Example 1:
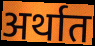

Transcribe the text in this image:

अर्थात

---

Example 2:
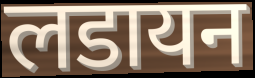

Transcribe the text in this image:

लडायन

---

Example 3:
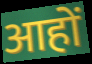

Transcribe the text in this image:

आहों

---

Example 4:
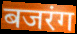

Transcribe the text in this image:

बजरंग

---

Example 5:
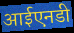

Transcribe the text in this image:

आईएनडी